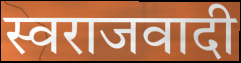
स्वराजवादी